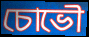
চোভৌ